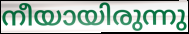
നീയായിരുന്നു